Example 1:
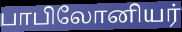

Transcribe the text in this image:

பாபிலோனியர்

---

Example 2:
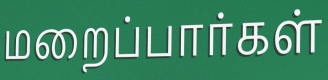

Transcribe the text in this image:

மறைப்பார்கள்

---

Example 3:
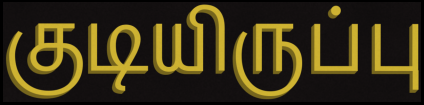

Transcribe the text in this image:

குடியிருப்பு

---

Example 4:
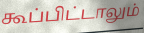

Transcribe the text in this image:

கூப்பிட்டாலும்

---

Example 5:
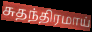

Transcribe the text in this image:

சுதந்திரமாய்